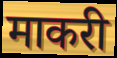
माकरी